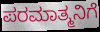
ಪರಮಾತ್ಮನಿಗೆ